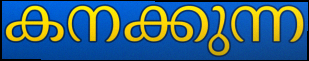
കനക്കുന്ന